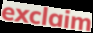
exclaim